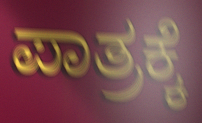
ಪಾತ್ರಕ್ಕೆ